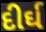
દીર્ઘ